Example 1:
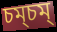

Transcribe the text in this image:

চম্চম্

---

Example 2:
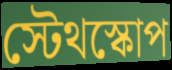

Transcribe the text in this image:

স্টেথস্কোপ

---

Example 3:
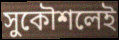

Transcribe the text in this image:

সুকৌশলেই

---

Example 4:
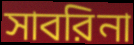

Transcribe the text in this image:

সাবরিনা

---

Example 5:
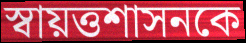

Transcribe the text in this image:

স্বায়ত্তশাসনকে